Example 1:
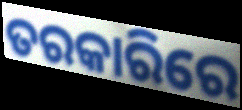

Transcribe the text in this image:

ତରକାରିରେ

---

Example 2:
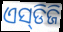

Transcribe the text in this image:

ଏସ୍‌ଡିଜି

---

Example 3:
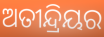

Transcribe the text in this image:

ଅତୀନ୍ଦ୍ରିୟର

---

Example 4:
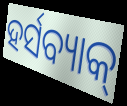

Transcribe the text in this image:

ହର୍ସବ୍ୟାକ୍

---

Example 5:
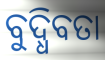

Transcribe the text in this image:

ବୁଦ୍ଧିବତା